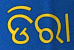
ଡିରା